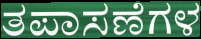
ತಪಾಸಣೆಗಳ